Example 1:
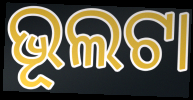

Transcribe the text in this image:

ଭୂଲଟା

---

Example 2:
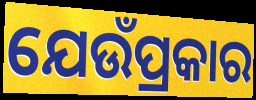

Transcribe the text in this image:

ଯେଉଁପ୍ରକାର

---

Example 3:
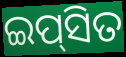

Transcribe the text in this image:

ଇପ୍‍ସିତ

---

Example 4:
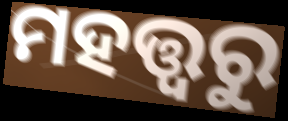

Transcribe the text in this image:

ମହତ୍ତ୍ୱରୁ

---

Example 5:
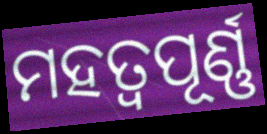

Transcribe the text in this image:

ମହତ୍ଵପୂର୍ଣ୍ଣ